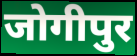
जोगीपुर